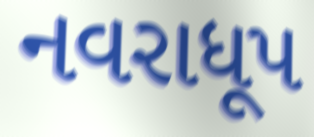
નવરાધૂપ